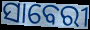
ସାବେରୀ